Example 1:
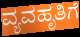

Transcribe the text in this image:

ವ್ಯವಹೃತಿಗೆ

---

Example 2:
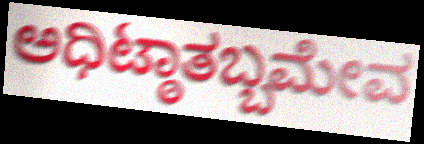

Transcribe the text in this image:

ಅಧಿಟ್ಠಾತಬ್ಬಮೇವ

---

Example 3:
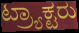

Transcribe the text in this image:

ಟ್ರ್ಯಾಕ್ಟರು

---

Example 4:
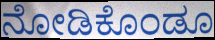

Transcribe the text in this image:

ನೋಡಿಕೊಂಡೂ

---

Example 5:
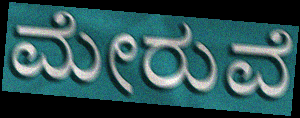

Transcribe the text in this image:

ಮೇರುವೆ